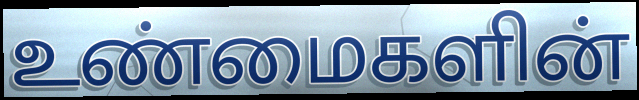
உண்மைகளின்